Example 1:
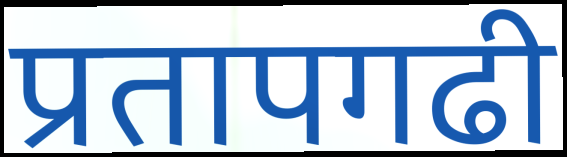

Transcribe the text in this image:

प्रतापगढी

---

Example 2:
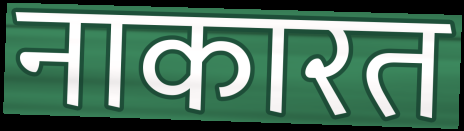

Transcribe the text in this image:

नाकारत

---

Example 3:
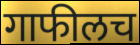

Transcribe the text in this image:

गाफीलच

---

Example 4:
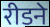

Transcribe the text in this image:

रीडने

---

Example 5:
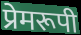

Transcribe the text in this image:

प्रेमरूपी